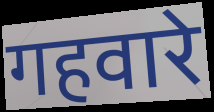
गहवारे